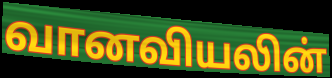
வானவியலின்